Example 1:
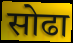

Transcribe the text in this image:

सोढा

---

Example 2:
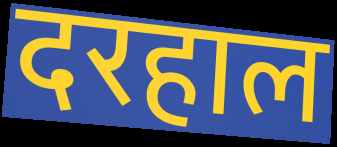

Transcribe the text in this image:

दरहाल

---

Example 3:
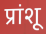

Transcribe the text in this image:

प्रांशू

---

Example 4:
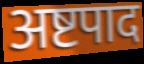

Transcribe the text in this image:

अष्टपाद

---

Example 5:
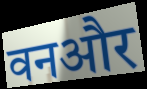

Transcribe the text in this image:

वनऔर